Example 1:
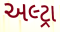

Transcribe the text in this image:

અલ્ટ્રા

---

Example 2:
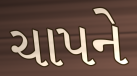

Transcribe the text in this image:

ચાપને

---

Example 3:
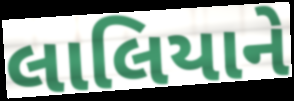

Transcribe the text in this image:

લાલિયાને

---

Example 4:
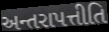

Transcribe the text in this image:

અન્તરાપત્તીતિ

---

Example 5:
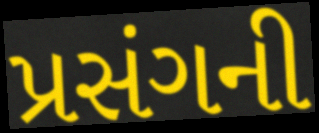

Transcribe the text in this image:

પ્રસંગની